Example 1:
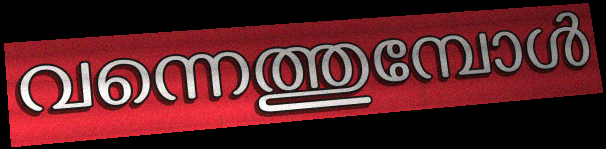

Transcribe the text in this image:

വന്നെത്തുമ്പോൾ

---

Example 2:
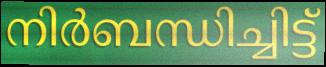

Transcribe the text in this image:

നിർബന്ധിച്ചിട്ട്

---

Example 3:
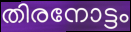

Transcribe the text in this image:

തിരനോട്ടം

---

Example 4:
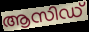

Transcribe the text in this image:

ആസിഡ്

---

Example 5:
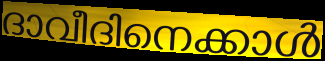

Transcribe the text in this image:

ദാവീദിനെക്കാൾ